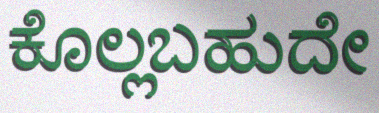
ಕೊಲ್ಲಬಹುದೇ